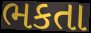
ભકતા